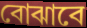
বোঝাবে